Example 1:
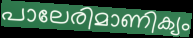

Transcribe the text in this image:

പാലേരിമാണിക്യം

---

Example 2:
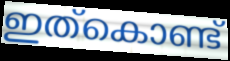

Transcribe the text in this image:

ഇത്കൊണ്ട്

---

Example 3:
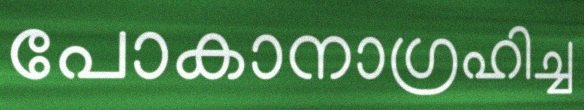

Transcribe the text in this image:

പോകാനാഗ്രഹിച്ച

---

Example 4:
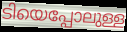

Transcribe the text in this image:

ടിയെപ്പോലുള്ള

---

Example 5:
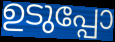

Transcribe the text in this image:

ഉടുപ്പോ